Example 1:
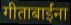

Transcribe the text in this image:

गीताबाईंना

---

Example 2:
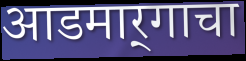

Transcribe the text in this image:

आडमार्गाचा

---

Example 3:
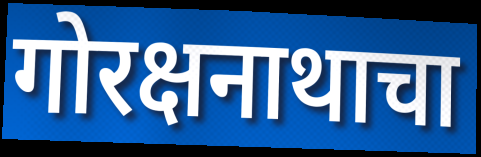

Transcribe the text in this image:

गोरक्षनाथाचा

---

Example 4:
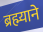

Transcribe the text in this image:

ब्रह्म्याने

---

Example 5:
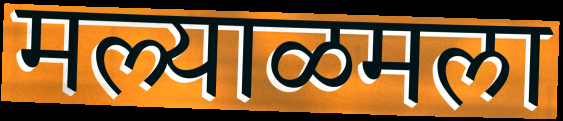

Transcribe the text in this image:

मल्याळमला